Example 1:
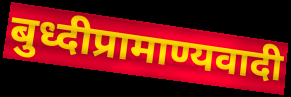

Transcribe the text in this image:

बुध्दीप्रामाण्यवादी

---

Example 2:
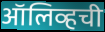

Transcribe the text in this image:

ऑलिव्हची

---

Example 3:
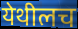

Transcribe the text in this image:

येथीलच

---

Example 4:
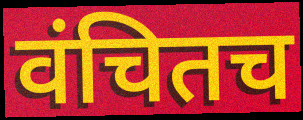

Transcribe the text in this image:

वंचितच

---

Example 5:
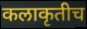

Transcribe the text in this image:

कलाकृतीच